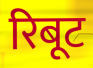
रिबूट